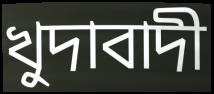
খুদাবাদী